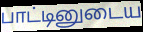
பாட்டினுடைய